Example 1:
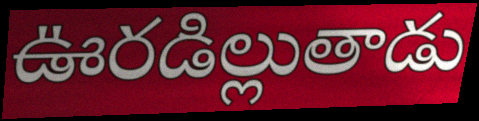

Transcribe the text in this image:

ఊరడిల్లుతాడు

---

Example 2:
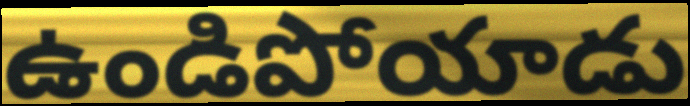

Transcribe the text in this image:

ఉండిపోయాడు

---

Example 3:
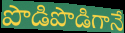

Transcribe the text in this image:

పొడిపొడిగానే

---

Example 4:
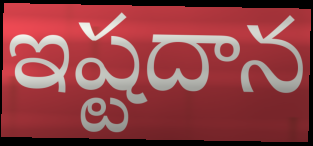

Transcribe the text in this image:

ఇష్టదాన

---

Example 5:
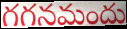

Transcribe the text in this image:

గగనమందు